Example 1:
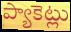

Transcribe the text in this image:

ప్యాకెట్లు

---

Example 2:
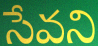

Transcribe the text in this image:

సేవని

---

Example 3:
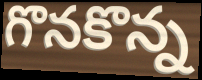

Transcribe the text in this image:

గొనకొన్న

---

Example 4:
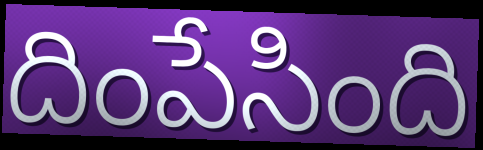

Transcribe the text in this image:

దింపేసింది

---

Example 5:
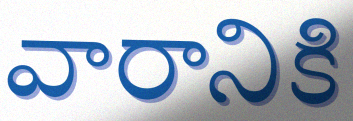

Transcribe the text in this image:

వారానికి